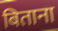
बिताना